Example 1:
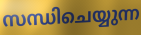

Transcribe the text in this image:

സന്ധിചെയ്യുന്ന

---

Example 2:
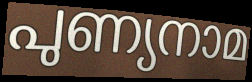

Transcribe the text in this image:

പുണ്യനാമ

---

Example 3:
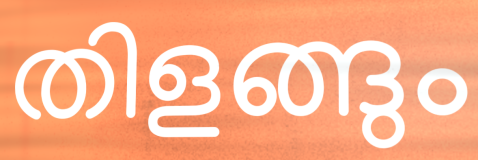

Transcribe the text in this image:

തിളങ്ങും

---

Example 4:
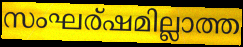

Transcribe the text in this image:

സംഘര്ഷമില്ലാത്ത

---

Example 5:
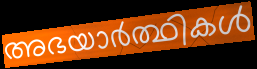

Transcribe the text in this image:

അഭയാർത്ഥികൾ